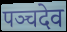
पञ्चदेव